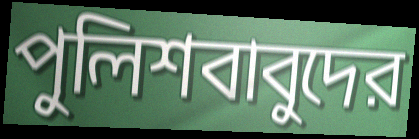
পুলিশবাবুদের